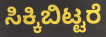
ಸಿಕ್ಕಿಬಿಟ್ಟರೆ